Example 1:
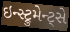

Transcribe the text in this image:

ઇન્સ્ટ્રુમેન્ટ્સે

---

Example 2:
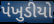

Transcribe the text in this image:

પંખુડીયો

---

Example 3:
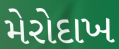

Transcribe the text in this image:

મેરોદાખ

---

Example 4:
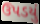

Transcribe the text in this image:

ઉપડયું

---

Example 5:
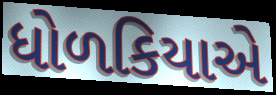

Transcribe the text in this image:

ધોળકિયાએ